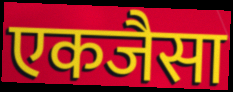
एकजैसा